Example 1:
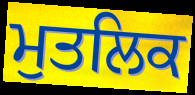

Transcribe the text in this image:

ਮੁਤਲਿਕ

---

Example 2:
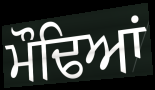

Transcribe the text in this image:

ਮੌਢਿਆਂ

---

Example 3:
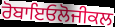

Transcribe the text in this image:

ਰੋਬਾਇਓਲੋਜੀਕਲ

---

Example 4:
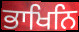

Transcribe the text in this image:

ਭਾਖਿਨਿ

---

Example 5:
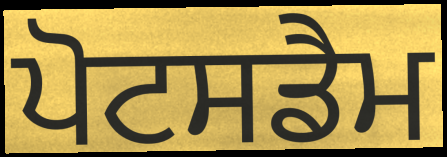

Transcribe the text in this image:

ਪੋਟਸਡੈਮ